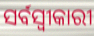
ସର୍ବସ୍ଵୀକାରୀ